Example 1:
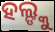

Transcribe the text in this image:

ହଲ୍ଙ୍କୁ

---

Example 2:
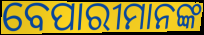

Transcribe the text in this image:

ବେପାରୀମାନଙ୍କ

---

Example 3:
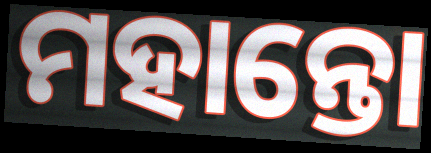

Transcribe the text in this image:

ମହାନ୍ତୋ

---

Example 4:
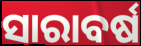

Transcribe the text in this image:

ସାରାବର୍ଷ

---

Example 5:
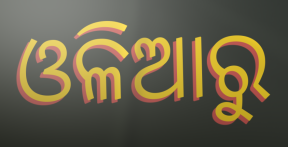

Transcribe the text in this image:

ଓଳିଆରୁ